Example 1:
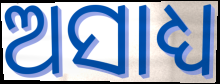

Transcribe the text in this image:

ଅସାଧ୍ୟ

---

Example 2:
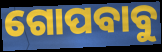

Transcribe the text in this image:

ଗୋପବାବୁ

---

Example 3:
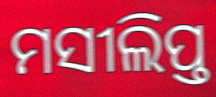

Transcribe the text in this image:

ମସୀଲିପ୍ତ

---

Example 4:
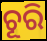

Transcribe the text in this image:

ଚୂରି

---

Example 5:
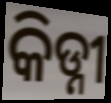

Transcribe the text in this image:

କିଡ୍ନୀ